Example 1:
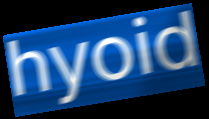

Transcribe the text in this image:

hyoid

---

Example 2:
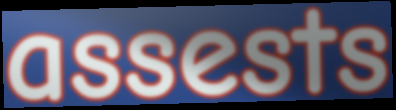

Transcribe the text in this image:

assests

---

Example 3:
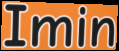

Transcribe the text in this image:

Imin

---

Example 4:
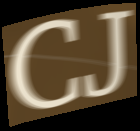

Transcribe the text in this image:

CJ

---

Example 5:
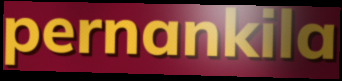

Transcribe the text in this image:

pernankila